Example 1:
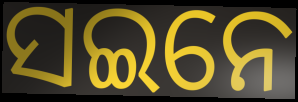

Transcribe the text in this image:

ସଇନେ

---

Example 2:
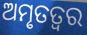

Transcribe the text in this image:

ଅମୃତତ୍ଵର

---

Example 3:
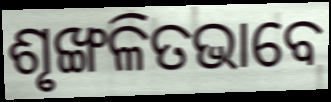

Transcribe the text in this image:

ଶୃଙ୍ଖଳିତଭାବେ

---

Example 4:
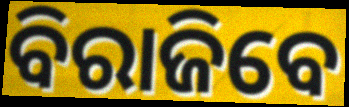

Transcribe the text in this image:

ବିରାଜିବେ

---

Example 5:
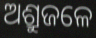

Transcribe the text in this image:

ଅଶ୍ରୁଜଳେ